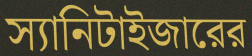
স্যানিটাইজারের